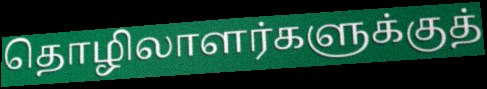
தொழிலாளர்களுக்குத்